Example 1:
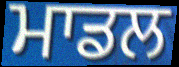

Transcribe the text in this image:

ਮਾਡਲ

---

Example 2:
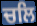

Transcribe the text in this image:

ਚਲਿ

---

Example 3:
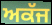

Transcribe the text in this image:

ਅਕੱਜ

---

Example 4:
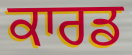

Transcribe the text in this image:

ਕਾਰਡ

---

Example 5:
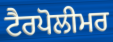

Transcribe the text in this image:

ਟੈਰਪੋਲੀਮਰ